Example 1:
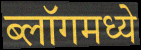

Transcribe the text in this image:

ब्लॉगमध्ये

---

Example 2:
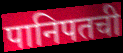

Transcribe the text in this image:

पानिपतची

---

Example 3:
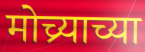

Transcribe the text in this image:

मोच्र्याच्या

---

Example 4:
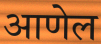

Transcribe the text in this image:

आणेल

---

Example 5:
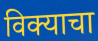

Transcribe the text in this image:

विक्याचा